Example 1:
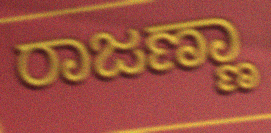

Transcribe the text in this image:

ರಾಜಣ್ಣಾ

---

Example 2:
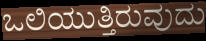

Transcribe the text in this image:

ಒಲಿಯುತ್ತಿರುವುದು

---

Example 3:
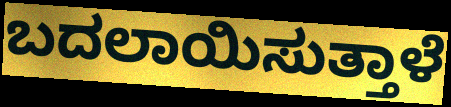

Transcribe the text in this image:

ಬದಲಾಯಿಸುತ್ತಾಳೆ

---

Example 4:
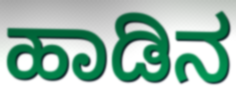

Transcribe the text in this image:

ಹಾಡಿನ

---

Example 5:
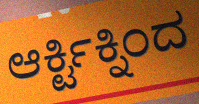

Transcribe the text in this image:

ಆರ್ಕ್ಟಿಕ್ನಿಂದ